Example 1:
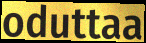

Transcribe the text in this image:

oduttaa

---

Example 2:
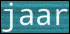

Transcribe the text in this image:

jaar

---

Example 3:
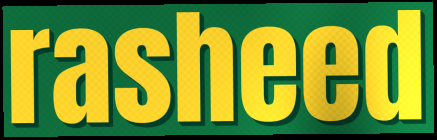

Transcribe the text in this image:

rasheed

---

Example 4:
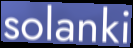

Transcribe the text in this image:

solanki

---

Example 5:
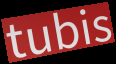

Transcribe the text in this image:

tubis